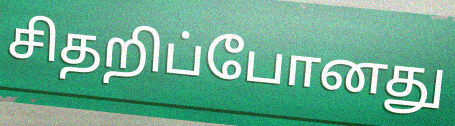
சிதறிப்போனது